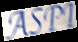
ASPI